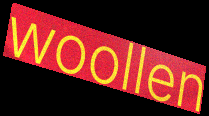
woollen